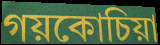
গয়কোচিয়া